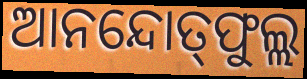
ଆନନ୍ଦୋତ୍‍ଫୁଲ୍ଲ